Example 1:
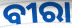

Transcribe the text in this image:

ବୀରା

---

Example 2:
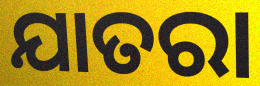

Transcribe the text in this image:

ଯାତରା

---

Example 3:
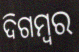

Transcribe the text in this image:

ଦିଗମ୍ୱର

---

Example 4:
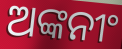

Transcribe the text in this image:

ଅଙ୍କନୀଂ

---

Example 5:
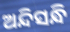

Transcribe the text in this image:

ଅନ୍ଦିସନ୍ଧି